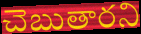
చెబుతారని